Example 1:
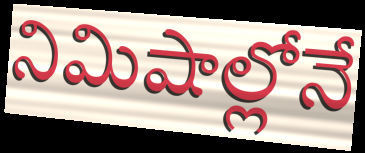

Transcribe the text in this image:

నిమిషాల్లోనే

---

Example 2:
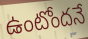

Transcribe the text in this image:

ఉంటోందనే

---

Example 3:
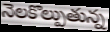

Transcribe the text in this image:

నెలకొల్పుతున్న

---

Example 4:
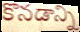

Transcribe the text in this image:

కొనడాన్ని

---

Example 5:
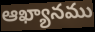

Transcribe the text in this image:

ఆఖ్యానము